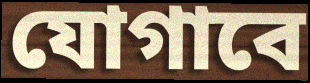
যোগাবে